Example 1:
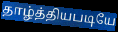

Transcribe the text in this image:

தாழ்த்தியபடியே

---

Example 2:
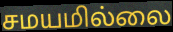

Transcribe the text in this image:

சமயமில்லை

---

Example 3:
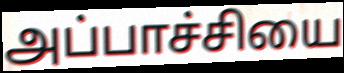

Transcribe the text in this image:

அப்பாச்சியை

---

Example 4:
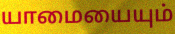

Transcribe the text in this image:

யாமையையும்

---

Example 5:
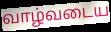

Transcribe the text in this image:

வாழ்வடைய